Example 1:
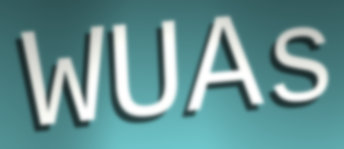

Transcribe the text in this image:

WUAs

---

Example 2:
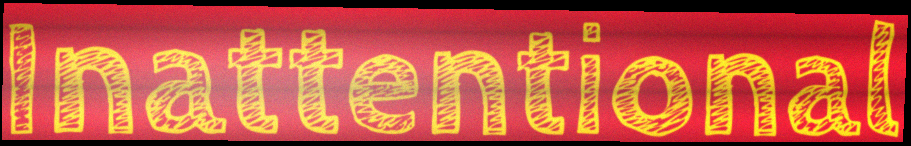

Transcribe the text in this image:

Inattentional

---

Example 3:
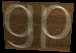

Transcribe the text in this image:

gp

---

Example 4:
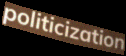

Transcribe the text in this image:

politicization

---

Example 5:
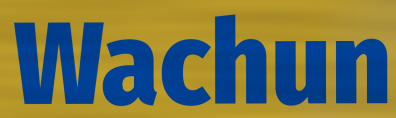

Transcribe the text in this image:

Wachun